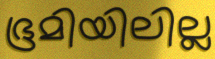
ഭൂമിയിലില്ല